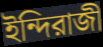
ইন্দিরাজী